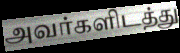
அவர்களிடத்து